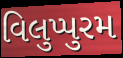
વિલુપ્પુરમ